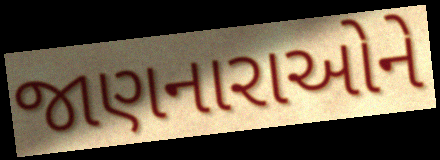
જાણનારાઓને